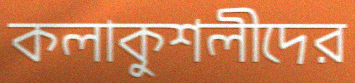
কলাকুশলীদের